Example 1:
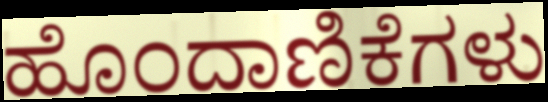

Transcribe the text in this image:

ಹೊಂದಾಣಿಕೆಗಳು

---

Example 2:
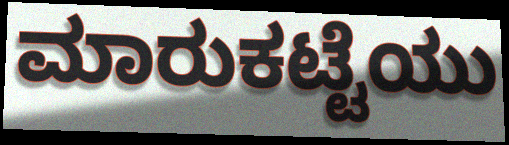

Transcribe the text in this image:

ಮಾರುಕಟ್ಟೆಯು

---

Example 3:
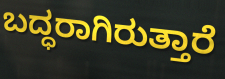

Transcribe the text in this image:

ಬದ್ಧರಾಗಿರುತ್ತಾರೆ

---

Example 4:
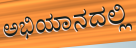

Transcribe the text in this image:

ಅಭಿಯಾನದಲ್ಲಿ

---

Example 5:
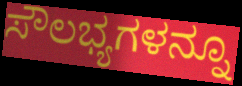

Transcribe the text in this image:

ಸೌಲಭ್ಯಗಳನ್ನೂ